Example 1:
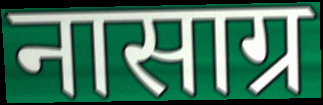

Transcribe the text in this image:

नासाग्र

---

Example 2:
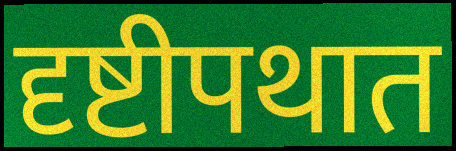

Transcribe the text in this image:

दृष्टीपथात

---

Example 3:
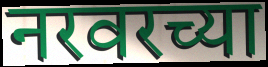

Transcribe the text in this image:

नरवरच्या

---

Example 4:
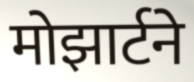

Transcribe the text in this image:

मोझार्टने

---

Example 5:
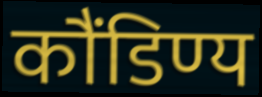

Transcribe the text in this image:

कौंडिण्य